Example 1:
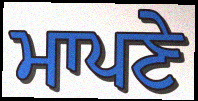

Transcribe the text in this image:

ਮਾਪਣੇ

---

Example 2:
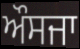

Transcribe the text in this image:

ਔਸਜਾ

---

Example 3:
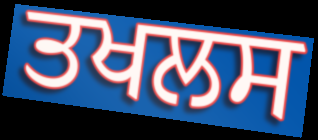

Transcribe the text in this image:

ਤਖਲਸ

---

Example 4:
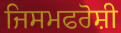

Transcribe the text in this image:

ਜਿਸਮਫਰੋਸ਼ੀ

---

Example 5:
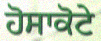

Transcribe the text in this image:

ਹੋਸਾਕੋਟੇ